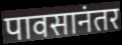
पावसानंतर